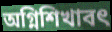
অগ্নিশিখাবৎ